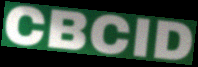
CBCID